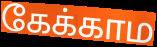
கேக்காம